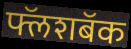
फ्लॅशबॅक